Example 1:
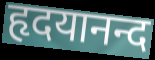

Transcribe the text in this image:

हृदयानन्द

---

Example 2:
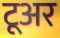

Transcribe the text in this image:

टूअर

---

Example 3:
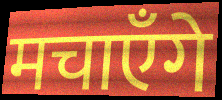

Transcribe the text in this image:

मचाएँगे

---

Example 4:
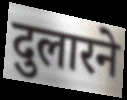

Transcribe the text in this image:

दुलारने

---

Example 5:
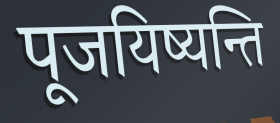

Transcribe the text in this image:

पूजयिष्यन्ति